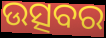
ଉତ୍ସବର